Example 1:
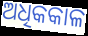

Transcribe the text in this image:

ଅଧିକକାଳ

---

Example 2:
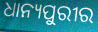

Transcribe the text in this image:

ଧାନ୍ୟପୁରୀର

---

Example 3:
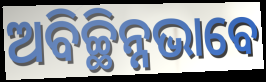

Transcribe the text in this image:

ଅବିଚ୍ଛିନ୍ନଭାବେ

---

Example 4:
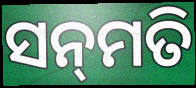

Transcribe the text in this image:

ସନ୍‌ମତି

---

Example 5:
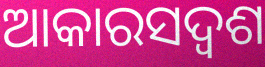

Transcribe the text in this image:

ଆକାରସଦ୍ୱଶ